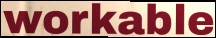
workable